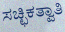
ಸಚ್ಛಿಕತ್ವಾತಿ